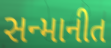
સન્માનીત